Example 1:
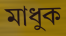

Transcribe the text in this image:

মাধুক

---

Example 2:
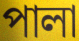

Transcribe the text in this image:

পালা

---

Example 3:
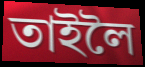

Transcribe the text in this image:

তাইলৈ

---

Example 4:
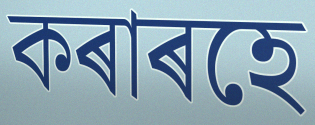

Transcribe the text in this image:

কৰাৰহে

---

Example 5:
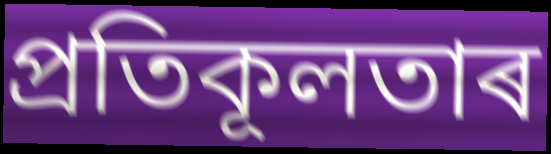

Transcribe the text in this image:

প্ৰতিকূলতাৰ